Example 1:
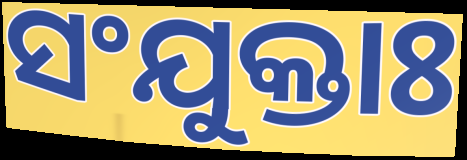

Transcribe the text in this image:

ସଂଯୁକ୍ତାଃ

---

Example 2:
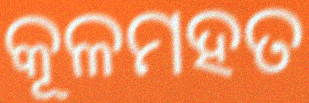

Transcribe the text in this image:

କୂଳମହତ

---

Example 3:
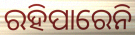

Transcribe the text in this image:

ରହିପାରେନି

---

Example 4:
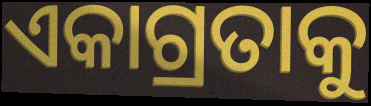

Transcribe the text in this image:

ଏକାଗ୍ରତାକୁ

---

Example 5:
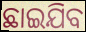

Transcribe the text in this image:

ଛାଇଯିବ